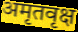
अमृतवृक्ष